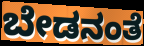
ಬೇಡನಂತೆ